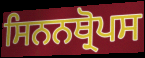
ਸਿਨਨਥ੍ਰੋਪਸ